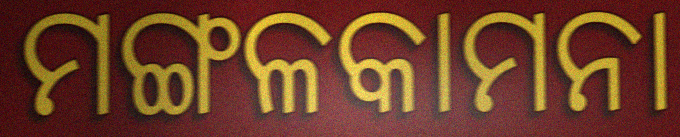
ମଙ୍ଗଳକାମନା